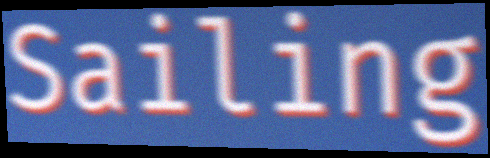
Sailing